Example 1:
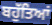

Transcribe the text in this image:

ਬਹੁੱਤਿਆਂ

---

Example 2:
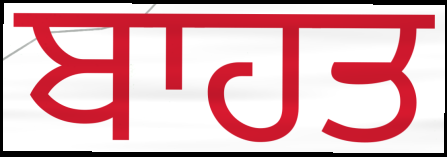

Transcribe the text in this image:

ਬਾਹਤ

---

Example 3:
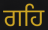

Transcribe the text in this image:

ਗਹਿ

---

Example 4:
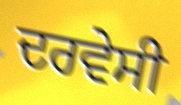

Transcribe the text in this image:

ਦਰਵੇਸੀ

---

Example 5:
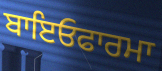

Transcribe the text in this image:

ਬਾਇਓਫਾਰਮਾ